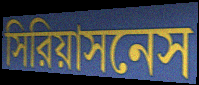
সিরিয়াসনেস